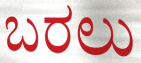
ಬರಲು